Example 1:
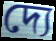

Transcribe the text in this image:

দ্যে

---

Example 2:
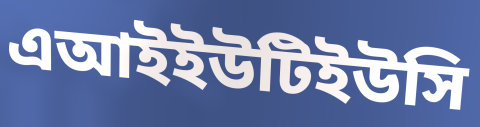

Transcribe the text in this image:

এআইইউটিইউসি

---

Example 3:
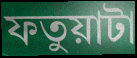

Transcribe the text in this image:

ফতুয়াটা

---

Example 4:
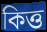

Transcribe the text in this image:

কিত্ত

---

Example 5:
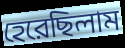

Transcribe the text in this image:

হেরেছিলাম